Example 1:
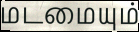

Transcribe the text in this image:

மடமையும்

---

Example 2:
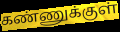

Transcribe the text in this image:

கண்ணுக்குள்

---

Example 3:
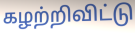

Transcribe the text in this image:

கழற்றிவிட்டு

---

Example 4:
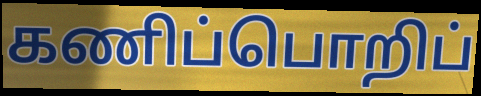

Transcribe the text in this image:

கணிப்பொறிப்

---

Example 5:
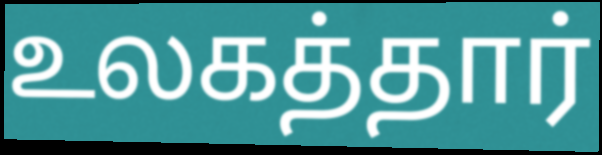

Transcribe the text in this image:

உலகத்தார்